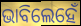
ଭାବିଲେହେଁ